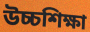
উচ্চশিক্ষা